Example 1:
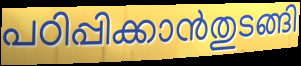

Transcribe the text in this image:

പഠിപ്പിക്കാൻതുടങ്ങി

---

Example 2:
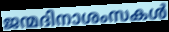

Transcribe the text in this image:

ജന്മദിനാശംസകൾ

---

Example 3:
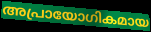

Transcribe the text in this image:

അപ്രായോഗികമായ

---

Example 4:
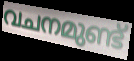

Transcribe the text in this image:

വചനമുണ്ട്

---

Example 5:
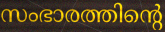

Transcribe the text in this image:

സംഭാരത്തിന്റെ